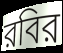
রবির